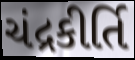
ચંદ્રકીર્તિ